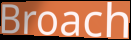
Broach